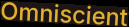
Omniscient